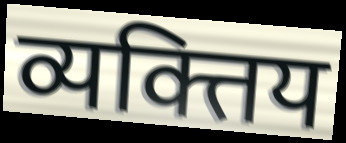
व्यक्तिय